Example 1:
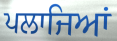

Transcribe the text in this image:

ਪਲਾਜਿਆਂ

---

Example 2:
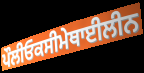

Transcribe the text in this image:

ਪੌਲੀਓਕਸੀਮੇਥਾਈਲੀਨ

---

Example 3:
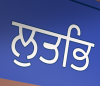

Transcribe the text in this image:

ਲੁਤਭਿ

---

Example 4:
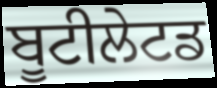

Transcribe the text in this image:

ਬੂਟੀਲੇਟਡ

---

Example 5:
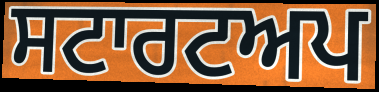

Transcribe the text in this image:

ਸਟਾਰਟਅਪ